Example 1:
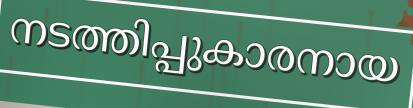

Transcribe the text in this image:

നടത്തിപ്പുകാരനായ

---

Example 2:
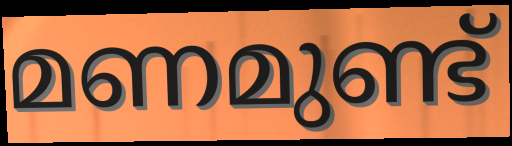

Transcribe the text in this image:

മണമുണ്ട്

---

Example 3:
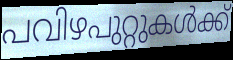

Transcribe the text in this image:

പവിഴപുറ്റുകൾക്ക്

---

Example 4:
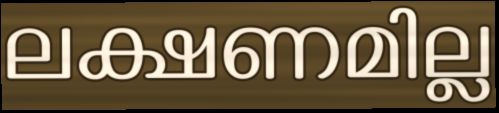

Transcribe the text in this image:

ലക്ഷണമില്ല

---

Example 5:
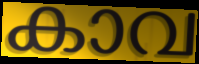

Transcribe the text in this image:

കാവ